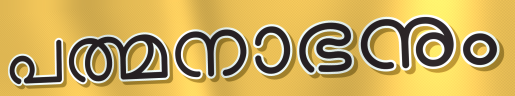
പത്മനാഭനും